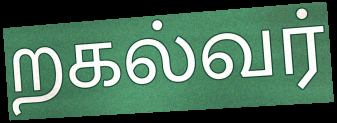
றகல்வர்